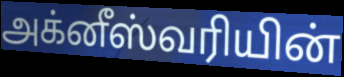
அக்னீஸ்வரியின்